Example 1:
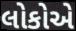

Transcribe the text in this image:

લોકોએ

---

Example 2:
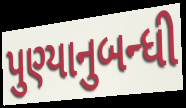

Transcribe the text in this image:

પુણ્યાનુબન્ધી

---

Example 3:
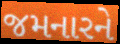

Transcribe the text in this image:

જમનારને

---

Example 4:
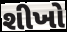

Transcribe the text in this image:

શીખો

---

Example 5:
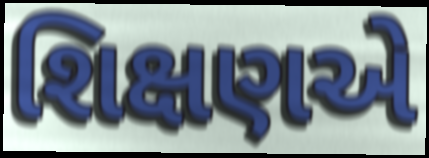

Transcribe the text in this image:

શિક્ષણએ